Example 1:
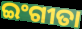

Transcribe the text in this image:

ଇଂଗୀତା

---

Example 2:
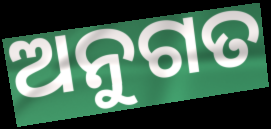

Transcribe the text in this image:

ଅନୁଗତ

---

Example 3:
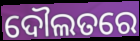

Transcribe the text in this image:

ଦୌଲତରେ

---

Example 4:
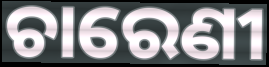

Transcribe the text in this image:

ଚାରେଣୀ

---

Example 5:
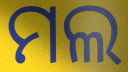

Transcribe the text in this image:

ମଲ